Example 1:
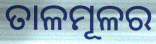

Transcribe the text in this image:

ତାଳମୂଳର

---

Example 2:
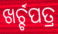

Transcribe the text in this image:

ଖର୍ଚ୍ଚପତ୍ର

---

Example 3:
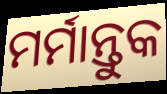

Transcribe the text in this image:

ମର୍ମାନ୍ତୁକ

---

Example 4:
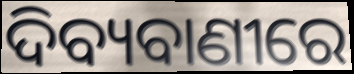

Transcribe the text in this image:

ଦିବ୍ୟବାଣୀରେ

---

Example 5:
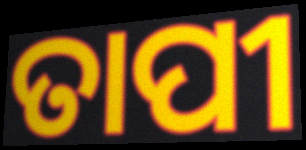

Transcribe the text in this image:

ତାପୀ